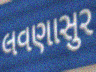
લવણાસુર